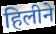
हिलीने